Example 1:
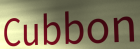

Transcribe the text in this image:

Cubbon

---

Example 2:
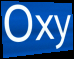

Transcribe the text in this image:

Oxy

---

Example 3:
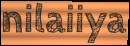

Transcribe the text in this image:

nilaiiya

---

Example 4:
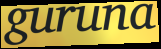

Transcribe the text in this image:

guruna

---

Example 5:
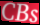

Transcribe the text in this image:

CBs